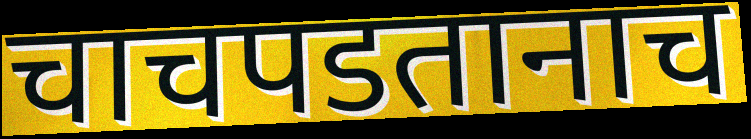
चाचपडतानाच